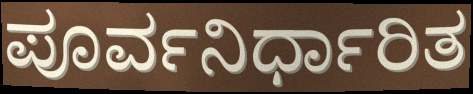
ಪೂರ್ವನಿರ್ಧಾರಿತ